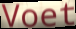
Voet